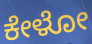
ಕೇಳೋ